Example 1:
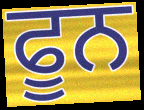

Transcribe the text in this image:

ਫੂਨ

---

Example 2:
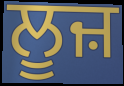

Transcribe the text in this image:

ਲੂਜ਼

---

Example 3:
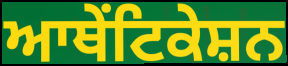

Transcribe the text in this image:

ਆਥੇਂਟਿਕੇਸ਼ਨ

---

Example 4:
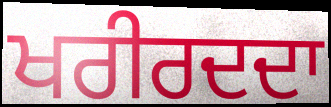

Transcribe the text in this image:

ਖਰੀਰਦਦਾ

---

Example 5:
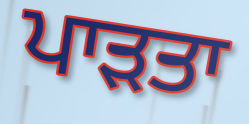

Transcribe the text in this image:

ਪਾੜਤਾ